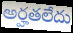
అర్హతలేదు